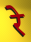
रे